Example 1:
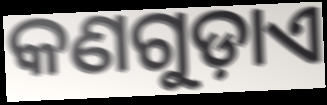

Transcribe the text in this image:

କଣଗୁଡ଼ାଏ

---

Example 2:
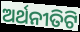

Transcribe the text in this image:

ଅର୍ଥନୀତିଟି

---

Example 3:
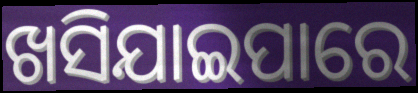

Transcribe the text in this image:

ଖସିଯାଇପାରେ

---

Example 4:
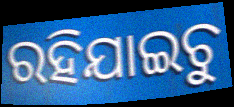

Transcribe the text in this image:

ରହିଯାଇଚୁ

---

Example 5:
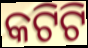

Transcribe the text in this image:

କଟିଟି